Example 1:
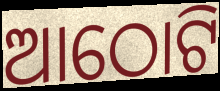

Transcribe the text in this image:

ଆଠୋଟି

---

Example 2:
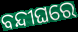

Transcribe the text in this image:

ବନ୍ଦୀଘରେ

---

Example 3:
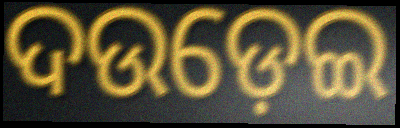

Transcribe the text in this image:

ଦଉଡ଼େଇ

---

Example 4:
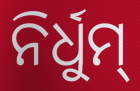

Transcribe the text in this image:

ନିର୍ଧୁମ୍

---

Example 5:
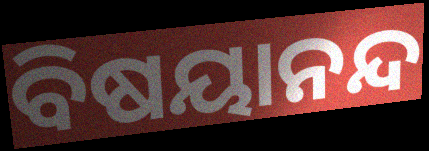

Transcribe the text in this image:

ବିଷୟାନନ୍ଦ